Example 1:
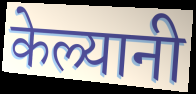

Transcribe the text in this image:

केल्यानी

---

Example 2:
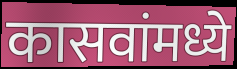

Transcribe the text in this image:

कासवांमध्ये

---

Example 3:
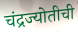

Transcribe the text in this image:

चंद्रज्योतीची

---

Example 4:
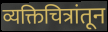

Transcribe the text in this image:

व्यक्तिचित्रांतून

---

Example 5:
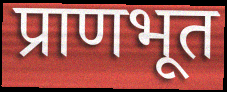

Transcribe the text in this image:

प्राणभूत